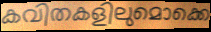
കവിതകളിലുമൊക്കെ